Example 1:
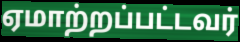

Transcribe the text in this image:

ஏமாற்றப்பட்டவர்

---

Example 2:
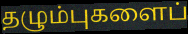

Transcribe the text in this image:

தழும்புகளைப்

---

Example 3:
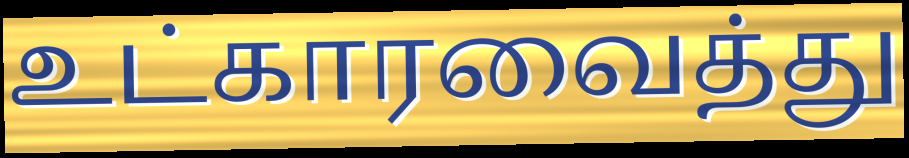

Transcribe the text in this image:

உட்காரவைத்து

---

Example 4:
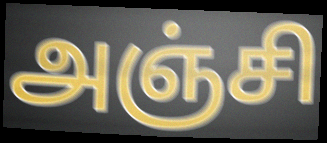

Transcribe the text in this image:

அஞ்சி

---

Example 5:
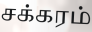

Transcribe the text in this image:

சக்கரம்